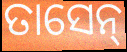
ତାସେନ୍